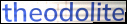
theodolite